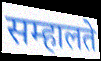
सम्हालते